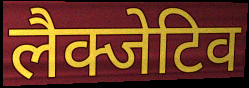
लैक्जेटिव